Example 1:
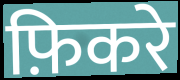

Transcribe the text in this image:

फ़िकरे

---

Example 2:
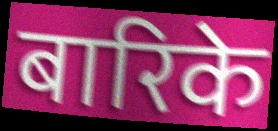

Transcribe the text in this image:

बारिके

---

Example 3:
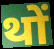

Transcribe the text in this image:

थों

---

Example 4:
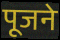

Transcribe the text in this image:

पूजने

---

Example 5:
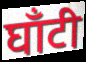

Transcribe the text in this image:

घाँटी